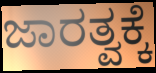
ಜಾರತ್ವಕ್ಕೆ